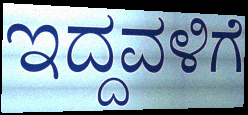
ಇದ್ದವಳಿಗೆ